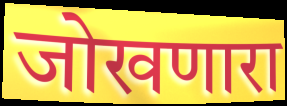
जोखणारा